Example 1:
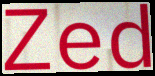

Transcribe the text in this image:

Zed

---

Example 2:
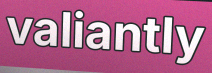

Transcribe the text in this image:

valiantly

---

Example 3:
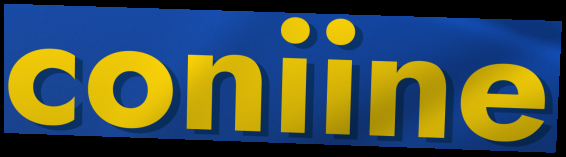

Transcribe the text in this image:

coniine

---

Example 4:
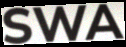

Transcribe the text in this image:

SWA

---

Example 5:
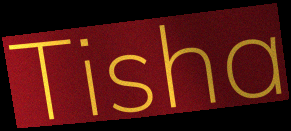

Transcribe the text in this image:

Tisha